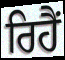
ਰਿਹੈਂ